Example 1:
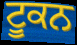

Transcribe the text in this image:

ਟੂਕਨ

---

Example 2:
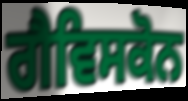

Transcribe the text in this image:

ਗੈਵਿਸਕੋਨ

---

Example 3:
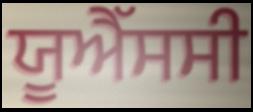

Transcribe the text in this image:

ਯੂਐੱਸਸੀ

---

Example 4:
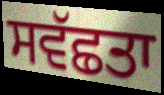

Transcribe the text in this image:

ਸਵੱਛਤਾ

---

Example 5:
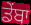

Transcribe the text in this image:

ਡੇਂਬਾ